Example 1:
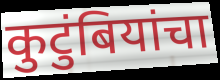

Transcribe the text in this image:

कुटुंबियांचा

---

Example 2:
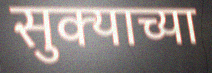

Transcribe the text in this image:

सुक्‍याच्या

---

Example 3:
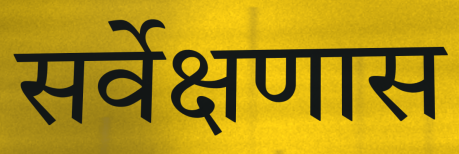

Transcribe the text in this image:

सर्वेक्षणास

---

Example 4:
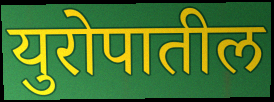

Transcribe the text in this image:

युरोपातील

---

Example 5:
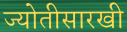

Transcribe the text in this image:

ज्योतीसारखी